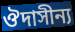
ঔদাসীন্য